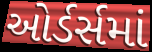
ઓર્ડર્સમાં